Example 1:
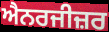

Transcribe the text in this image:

ਐਨਰਜੀਜ਼ਰ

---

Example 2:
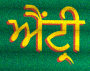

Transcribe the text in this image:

ਐਂਟ੍ਰੀ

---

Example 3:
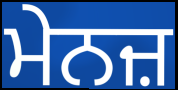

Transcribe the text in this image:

ਮੇਨਜ਼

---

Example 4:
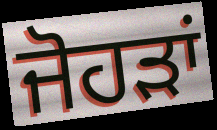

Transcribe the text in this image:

ਜੋਹੜਾਂ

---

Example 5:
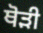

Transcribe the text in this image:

ਥੋੜੀ